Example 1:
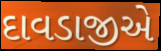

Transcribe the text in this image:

દાવડાજીએ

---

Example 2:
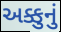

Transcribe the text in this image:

અક્કુનું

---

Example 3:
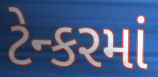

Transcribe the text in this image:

ટેન્કરમાં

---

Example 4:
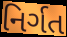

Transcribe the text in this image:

નિર્ગત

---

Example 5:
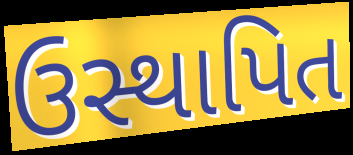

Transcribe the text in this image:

ઉસ્થાપિત